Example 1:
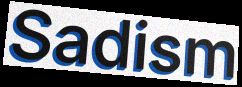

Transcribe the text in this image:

Sadism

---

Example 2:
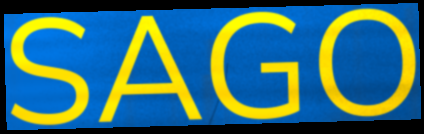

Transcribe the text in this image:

SAGO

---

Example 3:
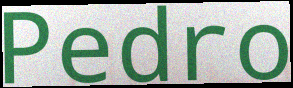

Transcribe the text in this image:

Pedro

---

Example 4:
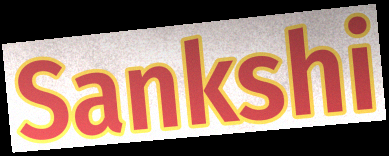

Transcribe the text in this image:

Sankshi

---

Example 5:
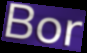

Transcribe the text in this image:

Bor